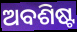
ଅବଶିଷ୍ଟ